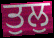
ਤੁਲੁ